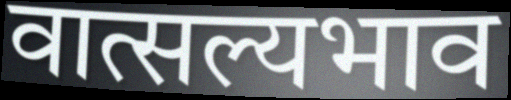
वात्सल्यभाव